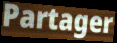
Partager